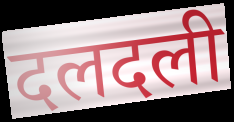
दलदली